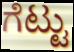
ಗೆಟ್ಟು